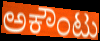
ಅಕೌಂಟು